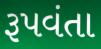
રૂપવંતા